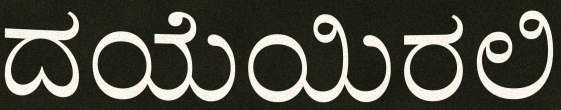
ದಯೆಯಿರಲಿ